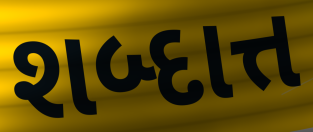
શબ્દાત્ત